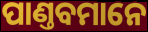
ପାଣ୍ତବମାନେ